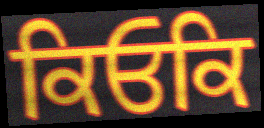
ਕਿਓਕਿ